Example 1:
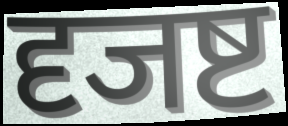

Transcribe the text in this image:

दृजष्ट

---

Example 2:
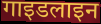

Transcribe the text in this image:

गाइडलाइन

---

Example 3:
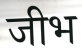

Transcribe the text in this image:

जीभ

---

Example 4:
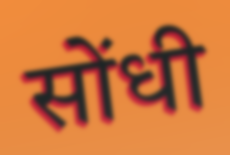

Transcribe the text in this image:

सोंधी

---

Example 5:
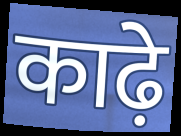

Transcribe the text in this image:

काढ़े